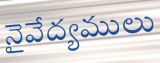
నైవేద్యములు